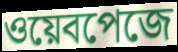
ওয়েবপেজে